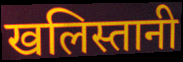
खलिस्तानी